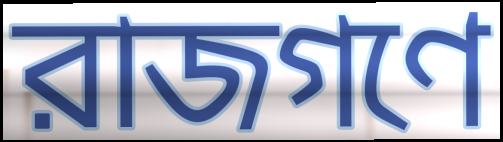
রাজগণে